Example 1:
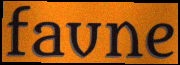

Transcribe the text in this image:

faune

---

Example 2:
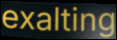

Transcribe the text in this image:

exalting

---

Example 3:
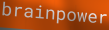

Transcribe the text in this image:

brainpower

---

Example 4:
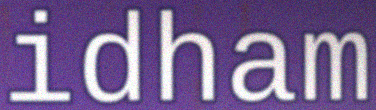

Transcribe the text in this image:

idham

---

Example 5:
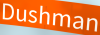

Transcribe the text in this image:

Dushman